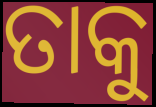
ତାକୁ